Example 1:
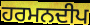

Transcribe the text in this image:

ਹਰਮਨਦੀਪ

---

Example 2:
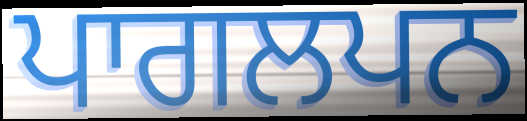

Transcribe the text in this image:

ਪਾਗਲਪਨ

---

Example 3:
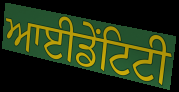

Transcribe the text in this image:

ਆਈਡੇਂਟਿਟੀ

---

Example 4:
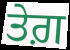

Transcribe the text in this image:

ਤੇਗ਼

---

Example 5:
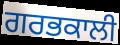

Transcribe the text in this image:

ਗਰਭਕਾਲੀ